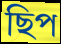
ছিপ